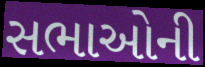
સભાઓની